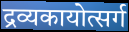
द्रव्यकायोत्सर्ग